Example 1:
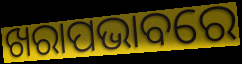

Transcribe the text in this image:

ଖରାପଭାବରେ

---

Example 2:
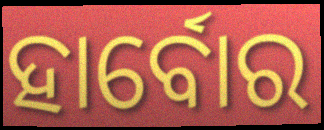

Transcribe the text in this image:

ହାର୍ବୋର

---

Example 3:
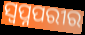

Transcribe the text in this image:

ସ୍ୱପ୍ନପରୀର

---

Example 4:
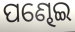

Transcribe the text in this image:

ପଣ୍ଢେଇ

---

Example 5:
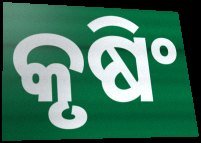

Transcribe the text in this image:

କୃଷିଂ